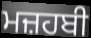
ਮਜ਼ਹਬੀ